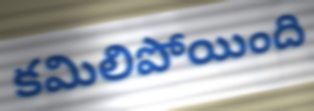
కమిలిపోయింది